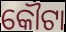
କୌଟା